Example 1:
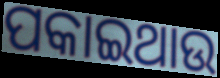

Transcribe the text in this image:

ପକାଇଥାଉ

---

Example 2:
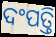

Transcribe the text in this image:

ଦଂପତ୍ତି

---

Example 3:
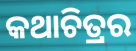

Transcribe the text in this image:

କଥାଚିତ୍ରର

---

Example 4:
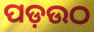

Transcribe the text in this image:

ପଡ଼ଉଠ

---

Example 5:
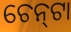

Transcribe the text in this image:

ଚେନ୍‌ଟା